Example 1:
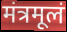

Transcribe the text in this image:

मंत्रमूलं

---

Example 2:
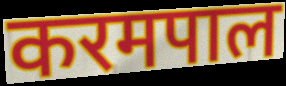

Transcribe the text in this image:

करमपाल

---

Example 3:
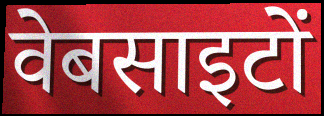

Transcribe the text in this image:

वेबसाइटों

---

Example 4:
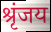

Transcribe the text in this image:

श्रृंजय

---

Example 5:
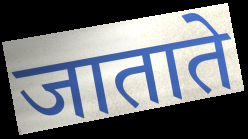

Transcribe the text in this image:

जाताते